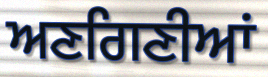
ਅਣਗਿਣੀਆਂ